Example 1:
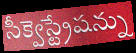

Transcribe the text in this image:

సీక్వెస్ట్రేషన్ను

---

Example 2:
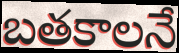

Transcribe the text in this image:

బతకాలనే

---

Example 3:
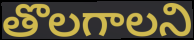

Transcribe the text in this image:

తొలగాలని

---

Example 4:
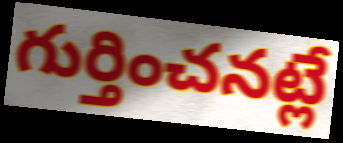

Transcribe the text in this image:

గుర్తించనట్లే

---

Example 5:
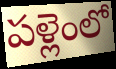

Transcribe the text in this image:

పళ్లెంలో